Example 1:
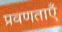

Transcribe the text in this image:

प्रवणताएँ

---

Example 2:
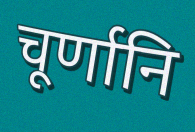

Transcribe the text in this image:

चूर्णानि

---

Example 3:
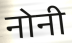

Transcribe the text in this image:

नोनी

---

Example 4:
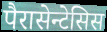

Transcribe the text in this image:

पैरासेन्टेसिस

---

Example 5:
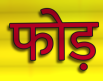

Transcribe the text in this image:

फोड़